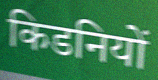
किडनियों